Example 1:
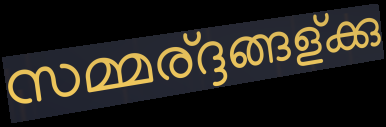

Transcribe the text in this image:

സമ്മര്ദ്ദങ്ങള്ക്കു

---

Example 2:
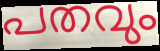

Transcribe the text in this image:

പതവും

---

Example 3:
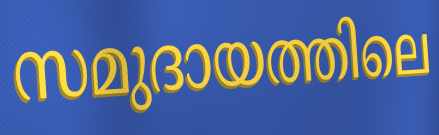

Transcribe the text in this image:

സമുദായത്തിലെ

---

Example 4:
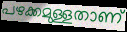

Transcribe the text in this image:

പഴക്കമുള്ളതാണ്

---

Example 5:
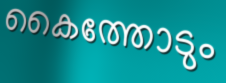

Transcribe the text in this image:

കൈത്തോടും